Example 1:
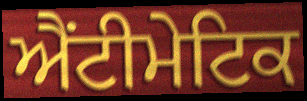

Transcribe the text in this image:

ਐਂਟੀਮੇਟਿਕ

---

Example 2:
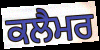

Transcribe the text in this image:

ਕਲੈਮਰ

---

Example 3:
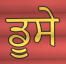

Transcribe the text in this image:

ਡੂਸੇ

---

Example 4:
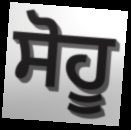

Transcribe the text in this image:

ਸੋਹੂ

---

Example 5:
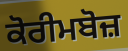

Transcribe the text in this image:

ਕੋਰੀਮਬੋਜ਼